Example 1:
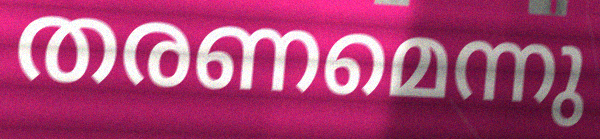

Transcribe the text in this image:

തരണമെന്നു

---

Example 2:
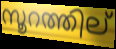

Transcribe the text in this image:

സൂറത്തില്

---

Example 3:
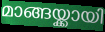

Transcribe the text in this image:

മാങ്ങയ്ക്കായി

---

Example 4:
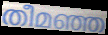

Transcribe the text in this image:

തീമഞ്ഞ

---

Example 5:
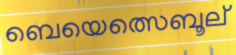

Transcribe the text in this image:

ബെയെത്സെബൂല്